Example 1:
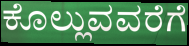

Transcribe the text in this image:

ಕೊಲ್ಲುವವರೆಗೆ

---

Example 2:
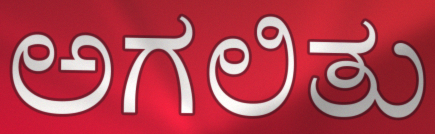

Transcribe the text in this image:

ಅಗಲಿತು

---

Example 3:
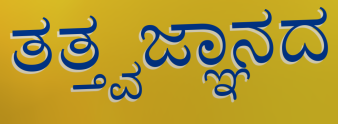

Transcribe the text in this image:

ತತ್ತ್ವಜ್ಞಾನದ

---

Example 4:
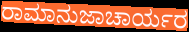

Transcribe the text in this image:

ರಾಮಾನುಜಾಚಾರ್ಯರ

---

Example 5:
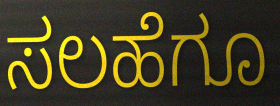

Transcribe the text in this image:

ಸಲಹೆಗೂ